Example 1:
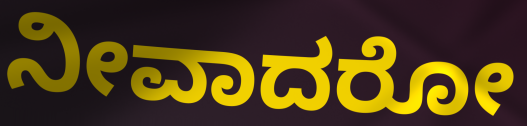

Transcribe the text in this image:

ನೀವಾದರೋ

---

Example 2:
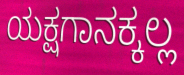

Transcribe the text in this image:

ಯಕ್ಷಗಾನಕ್ಕಲ್ಲ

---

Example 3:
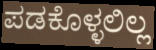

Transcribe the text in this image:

ಪಡಕೊಳ್ಳಲಿಲ್ಲ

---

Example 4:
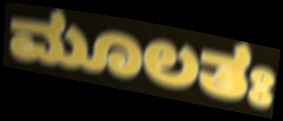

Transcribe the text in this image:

ಮೂಲತಃ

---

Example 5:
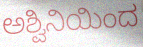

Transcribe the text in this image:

ಅಶ್ವಿನಿಯಿಂದ